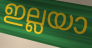
ഇല്ലയാ